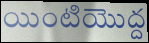
యింటియొద్ద